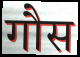
गौस